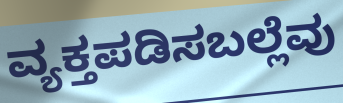
ವ್ಯಕ್ತಪಡಿಸಬಲ್ಲೆವು